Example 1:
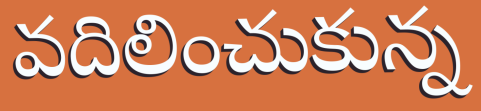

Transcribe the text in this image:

వదిలించుకున్న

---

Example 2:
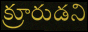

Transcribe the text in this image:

క్రూరుడని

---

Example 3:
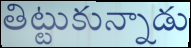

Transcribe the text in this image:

తిట్టుకున్నాడు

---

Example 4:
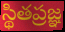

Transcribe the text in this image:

స్థితప్రజ్ఞ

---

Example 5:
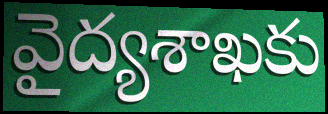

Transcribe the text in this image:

వైద్యశాఖకు